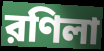
রণিলা